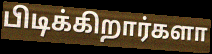
பிடிக்கிறார்களா